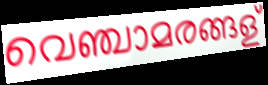
വെഞ്ചാമരങ്ങള്